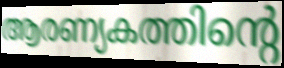
ആരണ്യകത്തിന്റെ